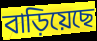
বাড়িয়েছে